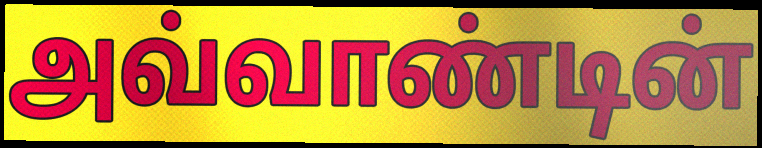
அவ்வாண்டின்